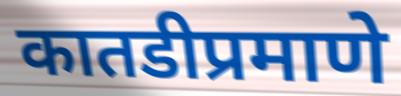
कातडीप्रमाणे